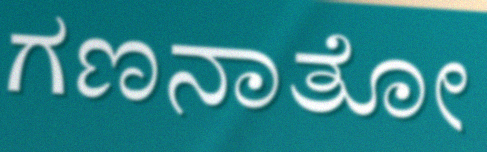
ಗಣನಾತೋ